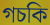
গচকি